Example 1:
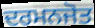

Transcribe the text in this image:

ਦਰਮਨਜੋਤ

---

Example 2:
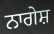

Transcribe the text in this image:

ਨਾਗੇਸ਼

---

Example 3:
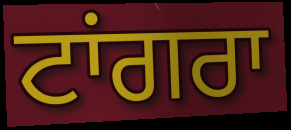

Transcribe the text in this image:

ਟਾਂਗਰਾ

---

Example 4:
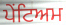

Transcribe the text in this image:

ਪੇਂਟਿਅਮ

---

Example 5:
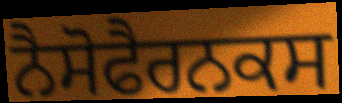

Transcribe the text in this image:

ਨੈਸੋਫੈਰਨਕਸ